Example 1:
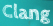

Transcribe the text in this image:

Clang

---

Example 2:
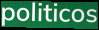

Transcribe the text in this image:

politicos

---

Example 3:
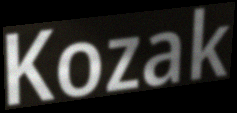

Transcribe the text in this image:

Kozak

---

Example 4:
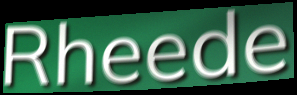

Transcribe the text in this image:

Rheede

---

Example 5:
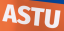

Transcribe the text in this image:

ASTU